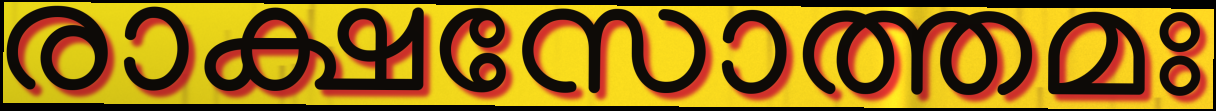
രാക്ഷസോത്തമഃ